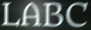
LABC